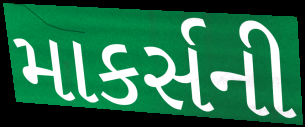
માકર્સની